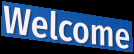
Welcome